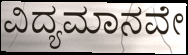
ವಿದ್ಯಮಾನವೇ